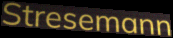
Stresemann